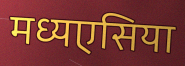
मध्यएसिया